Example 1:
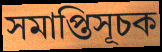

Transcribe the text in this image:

সমাপ্তিসূচক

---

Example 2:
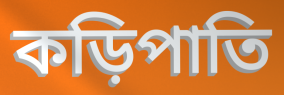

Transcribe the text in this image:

কড়িপাতি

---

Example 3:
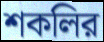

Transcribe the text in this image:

শকলির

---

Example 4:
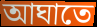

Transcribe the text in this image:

আঘাতে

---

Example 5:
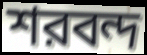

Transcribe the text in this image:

শরবন্দ